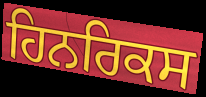
ਹਿਨਰਿਕਸ